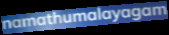
namathumalayagam